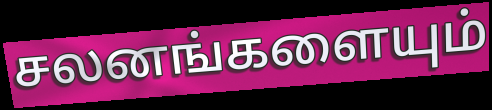
சலனங்களையும்